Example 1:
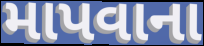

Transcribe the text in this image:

માપવાના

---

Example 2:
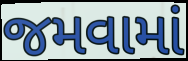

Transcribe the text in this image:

જમવામાં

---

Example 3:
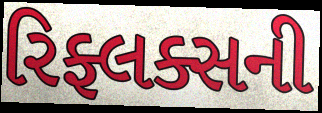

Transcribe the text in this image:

રિફ્લક્સની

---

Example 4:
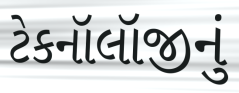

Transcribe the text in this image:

ટેકનૉલૉજીનું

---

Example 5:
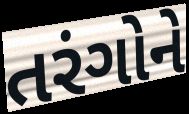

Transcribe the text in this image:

તરંગોને